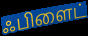
ஃபிளைட்